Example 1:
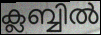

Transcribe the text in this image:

ക്ലബ്ബിൽ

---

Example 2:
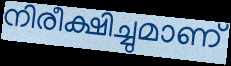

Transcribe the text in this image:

നിരീക്ഷിച്ചുമാണ്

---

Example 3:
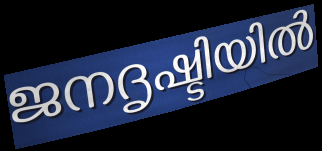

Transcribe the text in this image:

ജനദൃഷ്ടിയിൽ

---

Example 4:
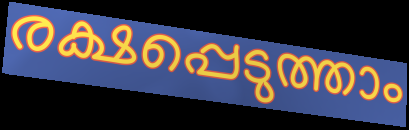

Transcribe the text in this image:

രക്ഷപ്പെടുത്താം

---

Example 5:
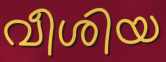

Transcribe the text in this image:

വീശിയ